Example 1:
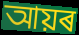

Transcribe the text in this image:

আয়ৰ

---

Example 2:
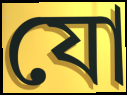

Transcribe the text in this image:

যো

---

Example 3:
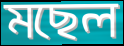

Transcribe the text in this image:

মছেল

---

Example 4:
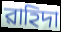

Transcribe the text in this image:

ৱাহিদা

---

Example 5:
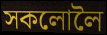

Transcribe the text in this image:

সকলোলৈ